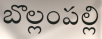
బొల్లంపల్లి